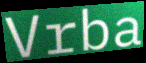
Vrba